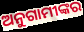
ଅନୁଗାମୀଙ୍କର